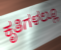
ಕೃತಿಗಳಲ್ಲೂ